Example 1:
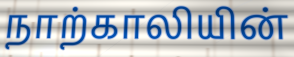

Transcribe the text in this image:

நாற்காலியின்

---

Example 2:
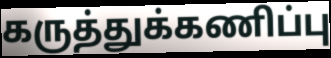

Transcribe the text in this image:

கருத்துக்கணிப்பு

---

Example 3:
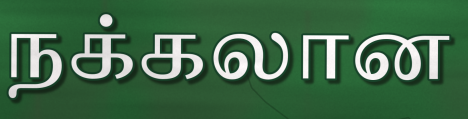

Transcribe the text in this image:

நக்கலான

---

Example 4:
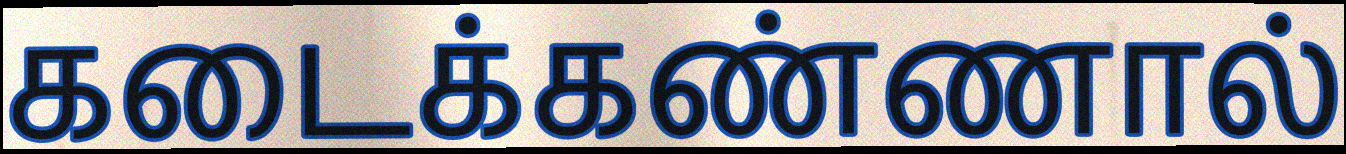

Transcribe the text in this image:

கடைக்கண்ணால்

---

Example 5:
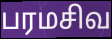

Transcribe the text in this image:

பரமசிவ